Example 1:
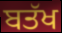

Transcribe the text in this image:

ਬਤੱਖ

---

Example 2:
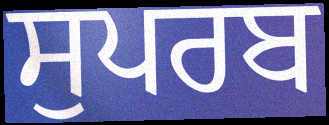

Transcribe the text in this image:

ਸੁਪਰਬ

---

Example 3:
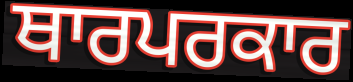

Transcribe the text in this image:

ਥਾਰਪਰਕਾਰ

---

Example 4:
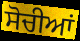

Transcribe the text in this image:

ਸੋਚੀਆਂ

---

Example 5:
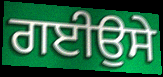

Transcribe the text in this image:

ਗਈਉਸੇ